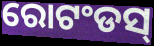
ରୋଟଂଡସ୍